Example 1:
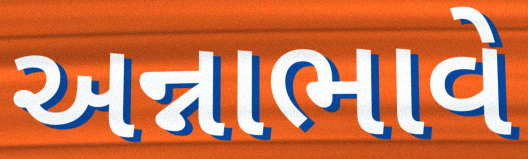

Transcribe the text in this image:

અન્નાભાવે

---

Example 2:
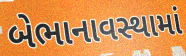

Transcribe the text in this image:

બેભાનાવસ્થામાં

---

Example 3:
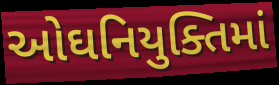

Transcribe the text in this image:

ઓઘનિયુક્તિમાં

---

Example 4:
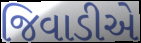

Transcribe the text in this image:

જિવાડીએ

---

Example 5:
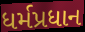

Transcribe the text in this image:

ધર્મપ્રધાન